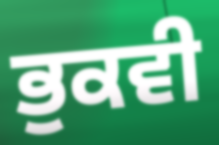
ਭੁਕਵੀ